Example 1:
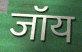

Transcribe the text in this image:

जॉय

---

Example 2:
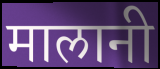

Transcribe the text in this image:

मालानी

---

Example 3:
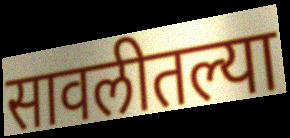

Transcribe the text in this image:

सावलीतल्या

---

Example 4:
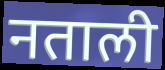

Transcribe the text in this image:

नताली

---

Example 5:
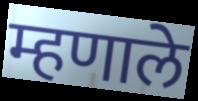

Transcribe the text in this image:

म्हणाले